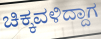
ಚಿಕ್ಕವಳಿದ್ದಾಗ